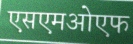
एसएमओएफ